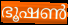
ഭൂഷൺ